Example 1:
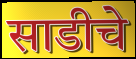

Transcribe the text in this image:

साडीचे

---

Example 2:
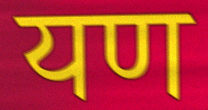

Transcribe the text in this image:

यण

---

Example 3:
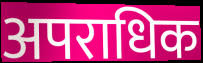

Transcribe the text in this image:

अपराधिक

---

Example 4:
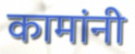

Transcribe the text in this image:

कामांनी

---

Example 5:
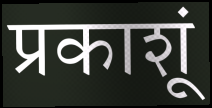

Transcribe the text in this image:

प्रकाशूं